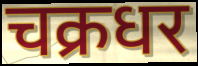
चक्रधर